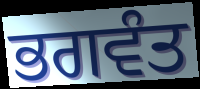
ਭਗਵੰਤ